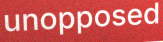
unopposed